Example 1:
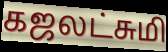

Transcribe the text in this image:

கஜலட்சுமி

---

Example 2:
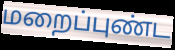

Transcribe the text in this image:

மறைப்புண்ட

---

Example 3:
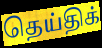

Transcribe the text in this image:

தெய்திக்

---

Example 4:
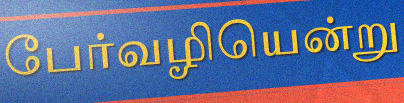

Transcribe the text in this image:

பேர்வழியென்று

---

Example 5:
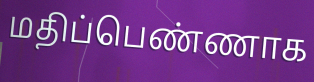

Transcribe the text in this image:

மதிப்பெண்ணாக